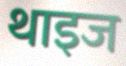
थाइज